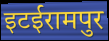
इटईरामपुर